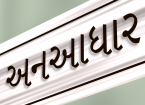
અનઆધાર